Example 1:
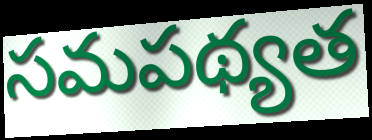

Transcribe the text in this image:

సమపథ్యత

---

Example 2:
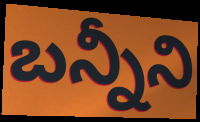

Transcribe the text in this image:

బన్నీని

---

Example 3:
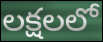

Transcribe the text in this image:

లక్షలలో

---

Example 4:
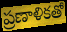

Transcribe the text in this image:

ప్రణాళికతో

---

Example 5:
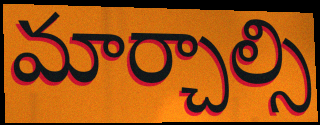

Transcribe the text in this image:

మార్చాల్సి